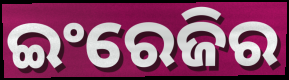
ଇଂରେଜିର